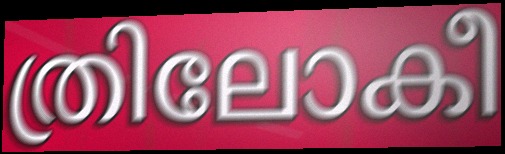
ത്രിലോകീ